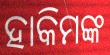
ହାକିମଙ୍କ